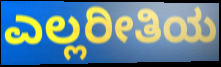
ಎಲ್ಲರೀತಿಯ